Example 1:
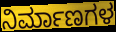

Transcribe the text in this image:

ನಿರ್ಮಾಣಗಳ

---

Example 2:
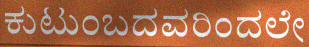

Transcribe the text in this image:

ಕುಟುಂಬದವರಿಂದಲೇ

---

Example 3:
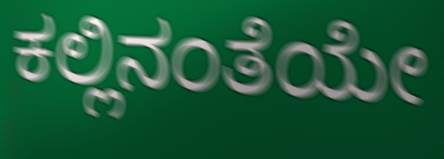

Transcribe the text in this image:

ಕಲ್ಲಿನಂತೆಯೇ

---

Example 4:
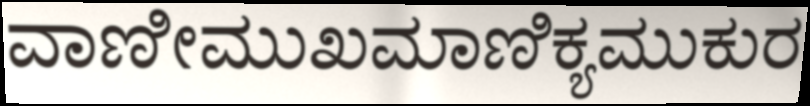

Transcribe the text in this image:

ವಾಣೀಮುಖಮಾಣಿಕ್ಯಮುಕುರ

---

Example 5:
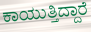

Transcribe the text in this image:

ಕಾಯುತ್ತಿದ್ದಾರೆ